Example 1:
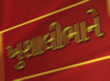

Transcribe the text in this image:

ખુશાલીભાને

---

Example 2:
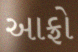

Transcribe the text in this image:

આફ્રો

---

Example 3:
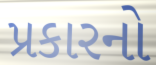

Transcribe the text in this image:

પ્રકારનો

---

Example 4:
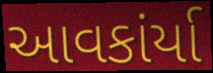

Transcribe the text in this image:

આવકાંર્યા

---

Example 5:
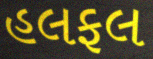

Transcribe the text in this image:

હલફલ